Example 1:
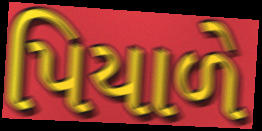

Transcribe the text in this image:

પિયાળે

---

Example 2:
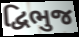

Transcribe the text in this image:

દ્વિભુજ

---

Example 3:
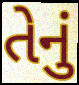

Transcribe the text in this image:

તેનું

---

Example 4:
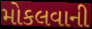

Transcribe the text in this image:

મોકલવાની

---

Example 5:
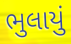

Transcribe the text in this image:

ભુલાયું